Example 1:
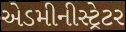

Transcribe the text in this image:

એડમીનીસ્ટ્રેટર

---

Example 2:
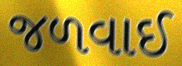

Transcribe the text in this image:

જળવાઈ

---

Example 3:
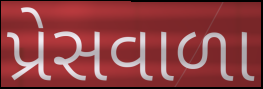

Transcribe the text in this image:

પ્રેસવાળા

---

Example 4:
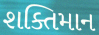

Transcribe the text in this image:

શક્તિમાન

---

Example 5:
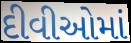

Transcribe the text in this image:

દીવીઓમાં